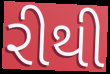
રીથી